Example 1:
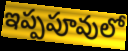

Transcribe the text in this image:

ఇప్పపూవులో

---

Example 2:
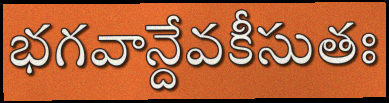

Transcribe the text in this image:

భగవాన్దేవకీసుతః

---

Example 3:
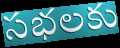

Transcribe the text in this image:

సభలకు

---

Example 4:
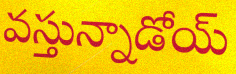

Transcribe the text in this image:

వస్తున్నాడోయ్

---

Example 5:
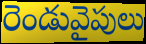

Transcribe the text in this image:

రెండువైపులు